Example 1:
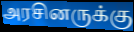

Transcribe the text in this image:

அரசினருக்கு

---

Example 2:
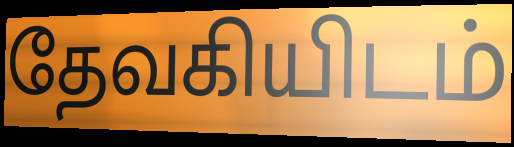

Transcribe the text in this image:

தேவகியிடம்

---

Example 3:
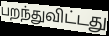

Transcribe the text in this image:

பறந்துவிட்டது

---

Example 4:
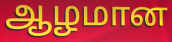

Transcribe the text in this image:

ஆழமான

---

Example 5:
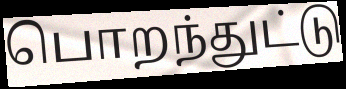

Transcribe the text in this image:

பொறந்துட்டு